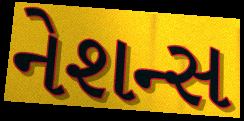
નેશન્સ